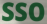
SSO